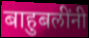
बाहुबलींनी